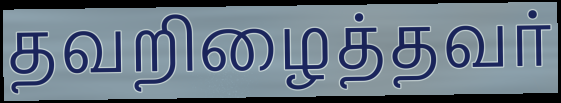
தவறிழைத்தவர்